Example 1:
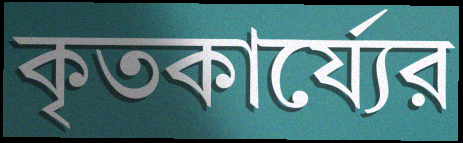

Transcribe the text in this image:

কৃতকার্য্যের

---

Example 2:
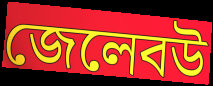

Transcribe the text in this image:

জেলেবউ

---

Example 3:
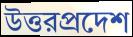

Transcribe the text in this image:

উত্তরপ্রদেশ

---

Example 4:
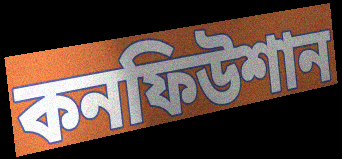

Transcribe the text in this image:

কনফিউশান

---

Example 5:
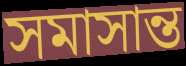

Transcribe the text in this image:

সমাসান্ত